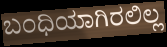
ಬಂಧಿಯಾಗಿರಲಿಲ್ಲ